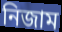
নিজাম